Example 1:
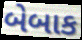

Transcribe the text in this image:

બેબાક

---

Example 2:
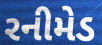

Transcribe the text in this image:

રનીમેડ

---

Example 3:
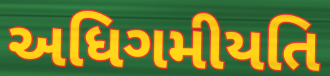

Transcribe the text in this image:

અધિગમીયતિ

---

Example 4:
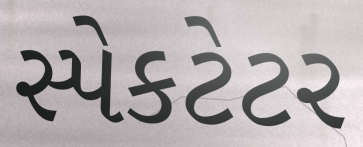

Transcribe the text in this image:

સ્પેકટેટર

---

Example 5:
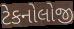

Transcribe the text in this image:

ટેકનોલોજી